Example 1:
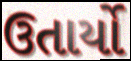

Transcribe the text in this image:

ઉતાર્યો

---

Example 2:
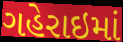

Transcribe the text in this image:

ગહેરાઇમાં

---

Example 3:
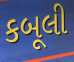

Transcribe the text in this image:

કબૂલી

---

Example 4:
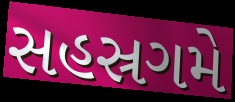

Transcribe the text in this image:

સહસ્રગમે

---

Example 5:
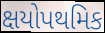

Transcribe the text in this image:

ક્ષયોપથમિક